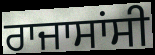
ਰਾਜਾਸਾਂਸੀ